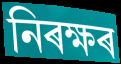
নিৰক্ষৰ